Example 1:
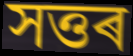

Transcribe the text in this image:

সত্তৰ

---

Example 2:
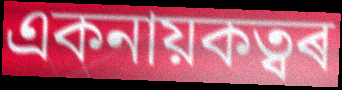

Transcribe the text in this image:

একনায়কত্বৰ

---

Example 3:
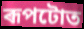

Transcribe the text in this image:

ৰূপটোত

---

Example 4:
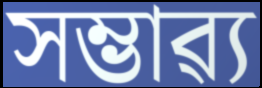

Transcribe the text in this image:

সম্ভাৱ্য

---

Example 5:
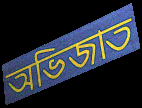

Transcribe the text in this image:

অভিজাত